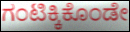
ಗಂಟಿಕ್ಕಿಕೊಂಡೇ